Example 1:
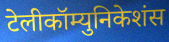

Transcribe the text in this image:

टेलीकॉम्युनिकेशंस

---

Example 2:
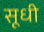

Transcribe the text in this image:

सूधी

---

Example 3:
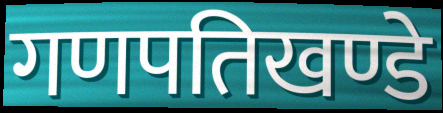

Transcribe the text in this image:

गणपतिखण्डे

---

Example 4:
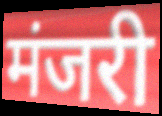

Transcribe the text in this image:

मंजरी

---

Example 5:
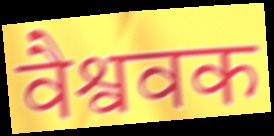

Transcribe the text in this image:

वैश्ववक